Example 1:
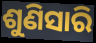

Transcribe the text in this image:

ଶୁଣିସାରି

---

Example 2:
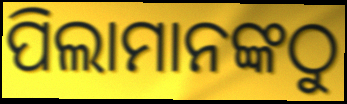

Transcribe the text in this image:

ପିଲାମାନଙ୍କଠୁ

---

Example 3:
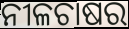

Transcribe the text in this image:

ନୀଳଚାଷର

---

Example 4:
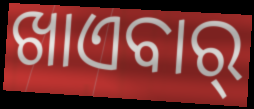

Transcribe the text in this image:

ଖାଏବାର୍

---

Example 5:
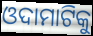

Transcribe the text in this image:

ଓଦାମାଟିକୁ